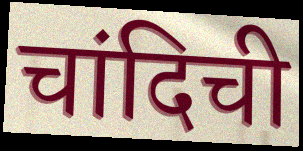
चांदिची